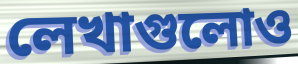
লেখাগুলোও